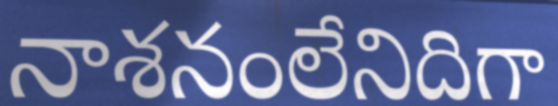
నాశనంలేనిదిగా